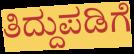
ತಿದ್ದುಪಡಿಗೆ